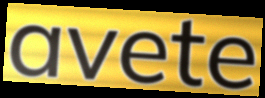
avete